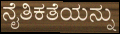
ನೈತಿಕತೆಯನ್ನು